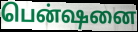
பென்ஷனை